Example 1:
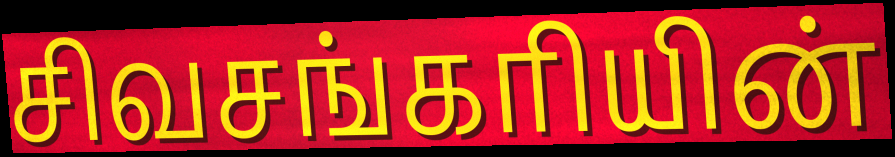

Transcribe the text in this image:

சிவசங்கரியின்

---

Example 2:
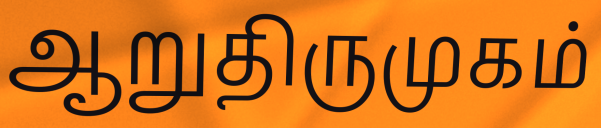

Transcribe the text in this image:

ஆறுதிருமுகம்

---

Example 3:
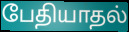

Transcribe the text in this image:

பேதியாதல்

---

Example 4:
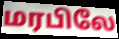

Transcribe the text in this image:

மரபிலே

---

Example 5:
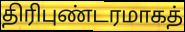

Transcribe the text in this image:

திரிபுண்டரமாகத்